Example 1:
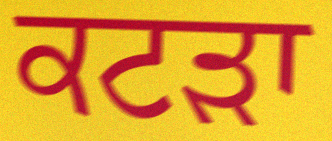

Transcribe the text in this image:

ਕਟੜਾ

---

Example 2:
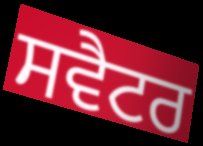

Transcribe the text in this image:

ਸਵੈਟਰ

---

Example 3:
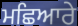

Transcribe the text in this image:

ਮਛਿਆਰੇ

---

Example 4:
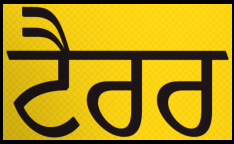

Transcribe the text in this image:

ਟੈਰਰ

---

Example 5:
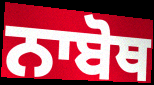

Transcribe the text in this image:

ਨਾਬੋਥ